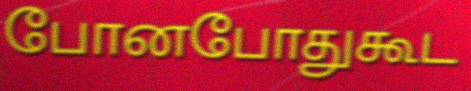
போனபோதுகூட